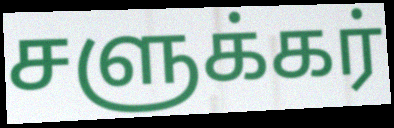
சளுக்கர்